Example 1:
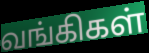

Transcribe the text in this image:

வங்கிகள்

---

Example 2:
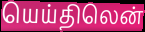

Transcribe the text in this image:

யெய்திலென்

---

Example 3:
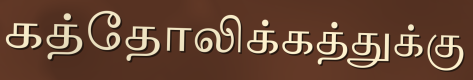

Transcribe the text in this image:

கத்தோலிக்கத்துக்கு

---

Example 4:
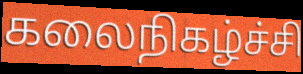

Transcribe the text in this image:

கலைநிகழ்ச்சி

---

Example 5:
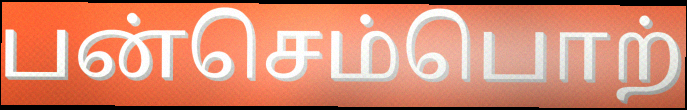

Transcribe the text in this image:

பன்செம்பொற்